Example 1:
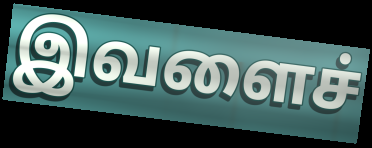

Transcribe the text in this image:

இவளைச்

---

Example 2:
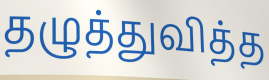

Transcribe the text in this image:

தழுத்துவித்த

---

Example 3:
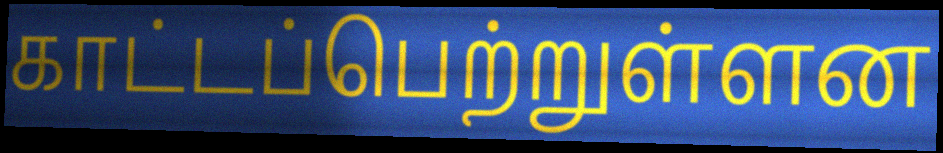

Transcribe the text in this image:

காட்டப்பெற்றுள்ளன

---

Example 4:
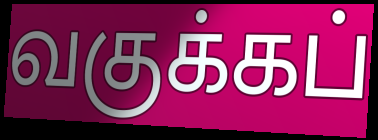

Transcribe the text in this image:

வகுக்கப்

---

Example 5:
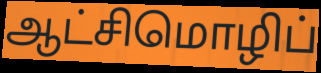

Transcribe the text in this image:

ஆட்சிமொழிப்